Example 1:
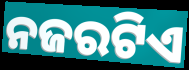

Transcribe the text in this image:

ନଜରଟିଏ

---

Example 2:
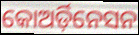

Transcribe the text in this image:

କୋଅର୍ଡ଼ିନେସନ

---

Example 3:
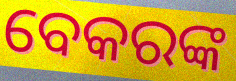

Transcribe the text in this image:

ବେକରଙ୍କ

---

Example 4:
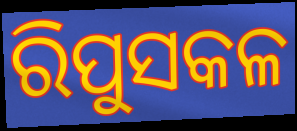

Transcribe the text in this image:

ରିପୁସକଳ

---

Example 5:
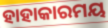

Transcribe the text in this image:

ହାହାକାରମୟ